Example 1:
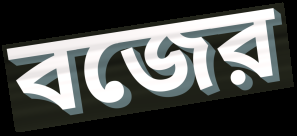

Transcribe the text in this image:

বজের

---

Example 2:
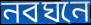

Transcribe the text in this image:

নবঘনে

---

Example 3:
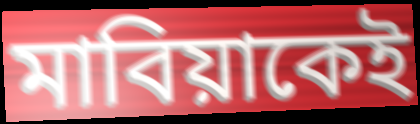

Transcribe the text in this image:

মাবিয়াকেই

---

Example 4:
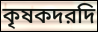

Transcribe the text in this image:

কৃষকদরদি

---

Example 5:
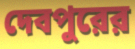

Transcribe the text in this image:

দেবপুরের